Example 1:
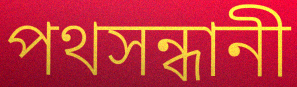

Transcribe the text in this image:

পথসন্ধানী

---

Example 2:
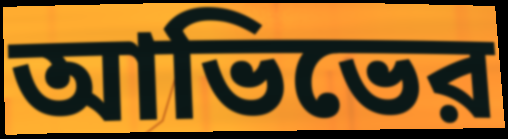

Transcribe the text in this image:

আভিভের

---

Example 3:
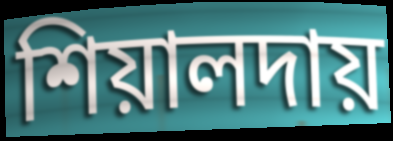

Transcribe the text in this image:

শিয়ালদায়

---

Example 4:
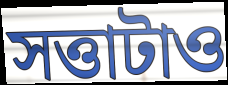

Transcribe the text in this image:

সত্তাটাও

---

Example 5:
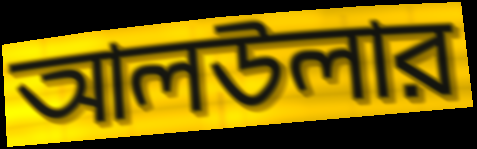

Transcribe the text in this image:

আলউলার